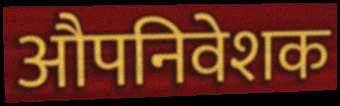
औपनिवेशक